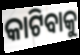
କାଟିବାକୁ